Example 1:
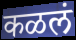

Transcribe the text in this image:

कळलं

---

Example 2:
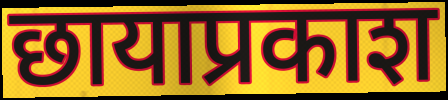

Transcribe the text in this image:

छायाप्रकाश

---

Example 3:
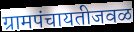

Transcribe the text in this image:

ग्रामपंचायतीजवळ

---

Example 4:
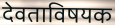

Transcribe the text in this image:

देवताविषयक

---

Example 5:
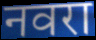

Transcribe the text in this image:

नवरा